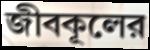
জীবকূলের